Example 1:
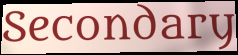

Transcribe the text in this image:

Secondary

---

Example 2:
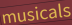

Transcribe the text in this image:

musicals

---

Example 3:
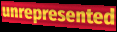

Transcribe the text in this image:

unrepresented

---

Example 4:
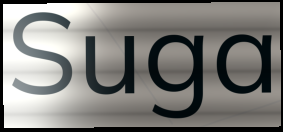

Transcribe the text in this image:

Suga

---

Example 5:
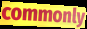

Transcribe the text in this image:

commonly